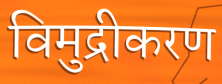
विमुद्रीकरण